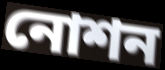
নোশন